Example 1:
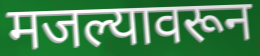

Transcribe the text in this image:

मजल्यावरून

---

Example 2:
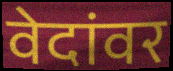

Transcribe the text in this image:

वेदांवर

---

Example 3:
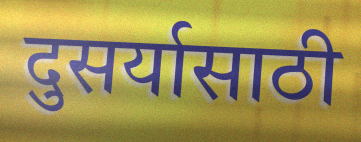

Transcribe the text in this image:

दुसर्यासाठी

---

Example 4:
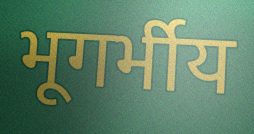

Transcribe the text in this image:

भूगर्भीय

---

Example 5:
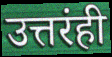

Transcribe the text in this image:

उत्तरंही